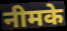
नीमके